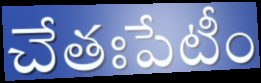
చేతఃపేటీం